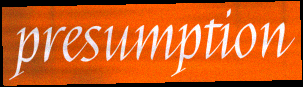
presumption